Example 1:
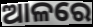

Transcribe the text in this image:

ଆଳରେ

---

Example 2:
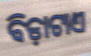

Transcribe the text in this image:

ବିଡ଼ାଟାଏ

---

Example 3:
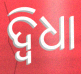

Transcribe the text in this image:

ଦ୍ବିଧା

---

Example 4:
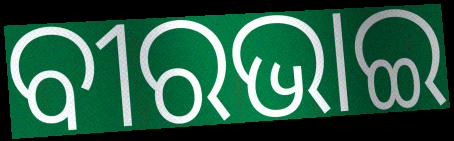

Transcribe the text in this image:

ବୀରଭାଇ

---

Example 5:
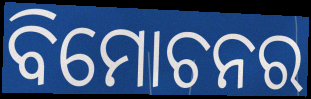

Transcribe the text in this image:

ବିମୋଚନର